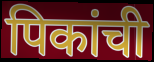
पिकांची